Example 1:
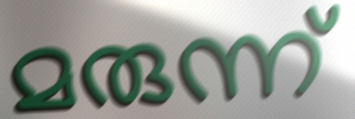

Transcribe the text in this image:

മരുന്ന്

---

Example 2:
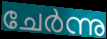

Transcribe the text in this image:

ചേർന്നു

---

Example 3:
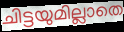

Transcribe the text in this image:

ചിട്ടയുമില്ലാതെ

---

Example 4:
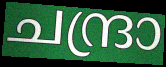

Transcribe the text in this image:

ചന്ദ്രാ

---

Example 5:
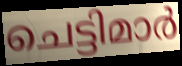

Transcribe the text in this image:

ചെട്ടിമാർ